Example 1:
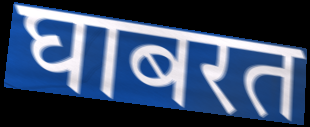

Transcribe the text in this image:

घाबरत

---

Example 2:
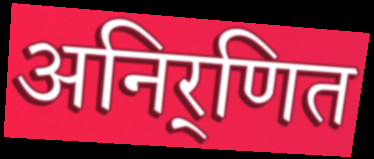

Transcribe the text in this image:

अनिर्णित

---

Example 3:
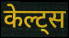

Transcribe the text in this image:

केल्ट्स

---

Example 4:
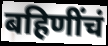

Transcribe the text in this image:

बहिणींचं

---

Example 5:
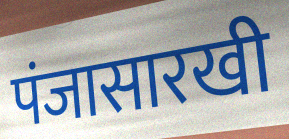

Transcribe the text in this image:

पंजासारखी